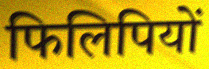
फिलिपियों